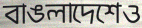
বাঙলাদেশেও